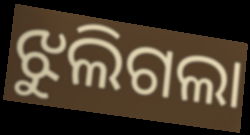
ଝୁଲିଗଲା